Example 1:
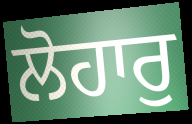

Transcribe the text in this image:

ਲੋਹਾਰੁ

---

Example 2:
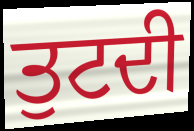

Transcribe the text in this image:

ਤੁਟਦੀ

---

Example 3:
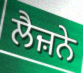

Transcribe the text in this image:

ਲੈਜ਼ਨੇ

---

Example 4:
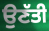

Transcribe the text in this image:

ਉਣੱਤੀ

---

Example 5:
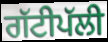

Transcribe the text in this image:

ਗੱਟੀਪੱਲੀ